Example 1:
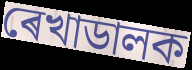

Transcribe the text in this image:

ৰেখাডালক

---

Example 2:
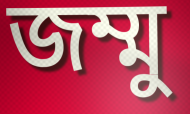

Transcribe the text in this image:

জম্মু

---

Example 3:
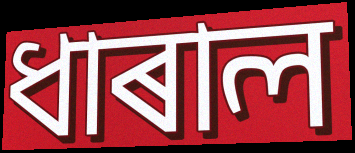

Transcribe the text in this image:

ধাৰাল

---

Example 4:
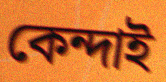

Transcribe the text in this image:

কেন্দাই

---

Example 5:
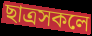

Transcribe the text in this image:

ছাত্ৰসকলে